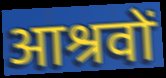
आश्रवों